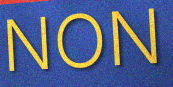
NON